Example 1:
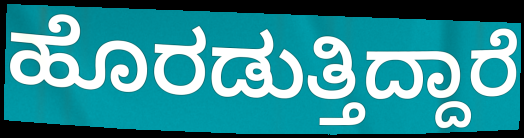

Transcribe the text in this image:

ಹೊರಡುತ್ತಿದ್ದಾರೆ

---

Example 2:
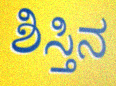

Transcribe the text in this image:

ಶಿಸ್ತಿನ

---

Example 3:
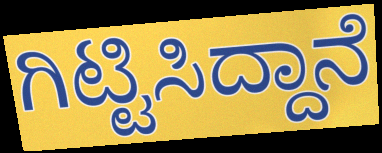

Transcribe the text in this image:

ಗಿಟ್ಟಿಸಿದ್ದಾನೆ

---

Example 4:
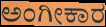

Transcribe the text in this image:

ಅಂಗೀಕಾರ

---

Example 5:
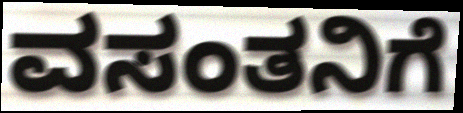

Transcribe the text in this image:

ವಸಂತನಿಗೆ